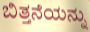
ಬಿತ್ತನೆಯನ್ನು